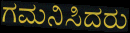
ಗಮನಿಸಿದರು